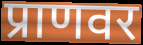
प्राणवर